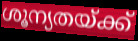
ശൂന്യതയ്ക്ക്